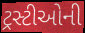
ટ્રસ્ટીઓની